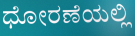
ಧೋರಣೆಯಲ್ಲಿ